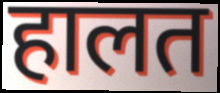
हालत